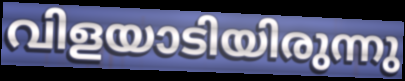
വിളയാടിയിരുന്നു